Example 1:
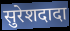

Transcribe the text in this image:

सुरेशदादा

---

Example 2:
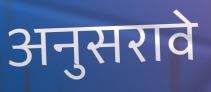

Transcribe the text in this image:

अनुसरावे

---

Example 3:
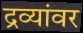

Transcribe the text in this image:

द्रव्यांवर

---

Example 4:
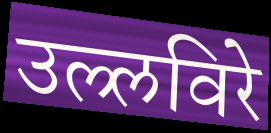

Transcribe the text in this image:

उल्लविरे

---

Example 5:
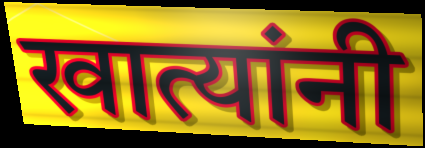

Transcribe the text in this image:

खात्यांनी